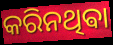
କରିନଥିଵା